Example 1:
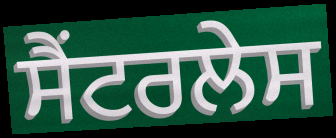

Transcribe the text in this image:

ਸੈਂਟਰਲੇਸ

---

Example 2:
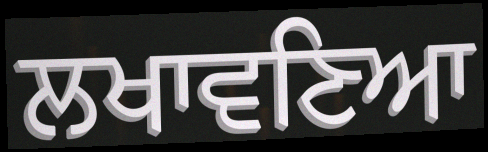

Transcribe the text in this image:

ਲਖਾਵਣਿਆ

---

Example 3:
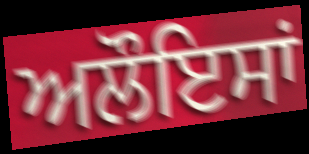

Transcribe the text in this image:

ਅਲੌਇਸਾਂ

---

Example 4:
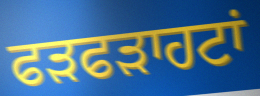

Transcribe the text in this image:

ਫੜਫੜਾਹਟਾਂ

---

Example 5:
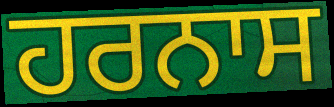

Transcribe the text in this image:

ਹਰਨਾਸ